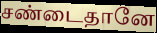
சண்டைதானே